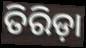
ତିରିଡ଼ା